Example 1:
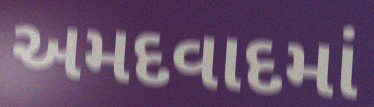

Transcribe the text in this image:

અમદવાદમાં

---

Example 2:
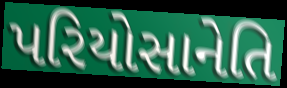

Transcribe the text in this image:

પરિયોસાનેતિ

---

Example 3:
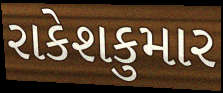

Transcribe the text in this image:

રાકેશકુમાર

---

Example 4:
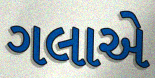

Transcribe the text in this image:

ગલાએ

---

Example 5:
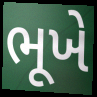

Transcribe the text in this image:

ભૂખે